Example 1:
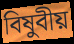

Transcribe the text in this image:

বিষুবীয়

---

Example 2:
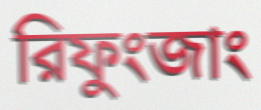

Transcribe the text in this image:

রিফুংজাং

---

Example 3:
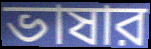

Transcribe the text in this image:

ভাষার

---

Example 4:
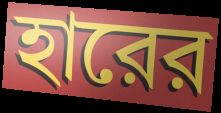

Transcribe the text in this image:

হারের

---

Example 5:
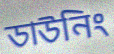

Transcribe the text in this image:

ডাউনিং